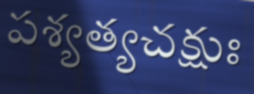
పశ్యత్యచక్షుః